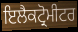
ਇਲੈਕਟ੍ਰੋਮੀਟਰ